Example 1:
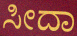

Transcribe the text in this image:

ಸೀದಾ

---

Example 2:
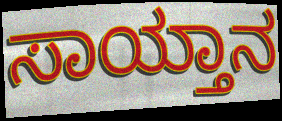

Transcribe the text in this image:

ಸಾಯ್ತಾನ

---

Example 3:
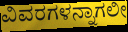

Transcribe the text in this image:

ವಿವರಗಳನ್ನಾಗಲೀ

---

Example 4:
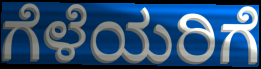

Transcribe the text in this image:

ಗೆಳೆಯರಿಗೆ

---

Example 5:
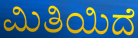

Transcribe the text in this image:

ಮಿತಿಯಿದೆ